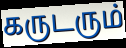
கருடரும்